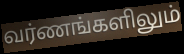
வர்ணங்களிலும்